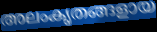
അലംകൃതങ്ങളായ